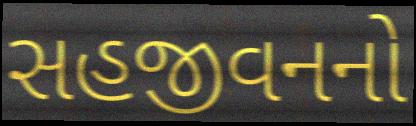
સહજીવનનો